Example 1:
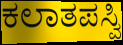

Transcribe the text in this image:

ಕಲಾತಪಸ್ವಿ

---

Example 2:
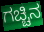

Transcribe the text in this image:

ಗಚ್ಚಿನ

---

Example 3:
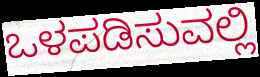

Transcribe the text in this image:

ಒಳಪಡಿಸುವಲ್ಲಿ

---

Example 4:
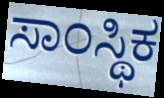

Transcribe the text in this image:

ಸಾಂಸ್ಥಿಕ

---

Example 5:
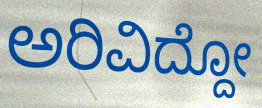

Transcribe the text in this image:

ಅರಿವಿದ್ದೋ